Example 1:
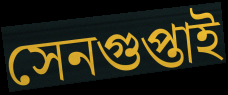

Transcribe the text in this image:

সেনগুপ্তাই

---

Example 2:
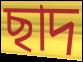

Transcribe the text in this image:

ছাদ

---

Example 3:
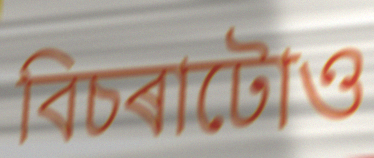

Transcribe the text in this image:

বিচৰাটোও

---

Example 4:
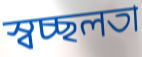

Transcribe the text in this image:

স্বচ্ছলতা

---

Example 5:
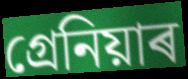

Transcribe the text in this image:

গ্ৰেনিয়াৰ